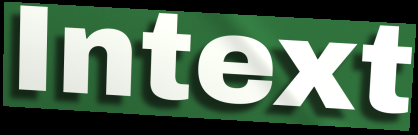
Intext